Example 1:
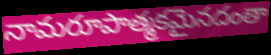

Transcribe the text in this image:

నామరూపాత్మకమైనదంతా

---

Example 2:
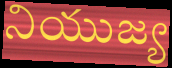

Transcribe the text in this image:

నియుజ్య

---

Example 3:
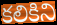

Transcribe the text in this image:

కలికిని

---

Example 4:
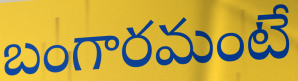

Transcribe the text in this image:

బంగారమంటే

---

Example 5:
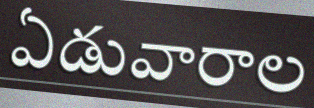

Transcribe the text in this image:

ఏడువారాల